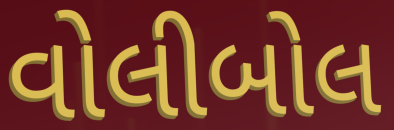
વોલીબોલ